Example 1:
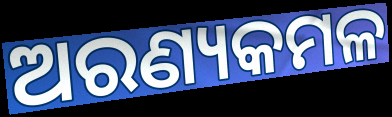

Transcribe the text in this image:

ଅରଣ୍ୟକମଳ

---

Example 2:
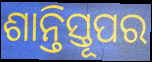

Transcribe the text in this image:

ଶାନ୍ତିସ୍ତୂପର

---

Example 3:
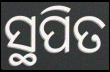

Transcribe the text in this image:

ସ୍ଥପିତ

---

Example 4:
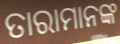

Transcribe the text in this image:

ତାରାମାନଙ୍କ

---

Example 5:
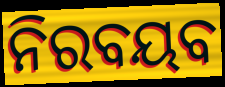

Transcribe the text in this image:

ନିରବୟବ